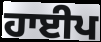
ਹਾਈਪ